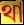
থা